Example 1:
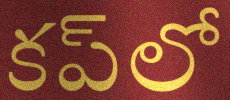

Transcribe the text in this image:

కప్‌లో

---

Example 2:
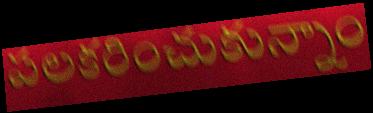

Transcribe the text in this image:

పలకరించుకున్నాం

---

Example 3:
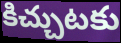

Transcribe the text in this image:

కిచ్చుటకు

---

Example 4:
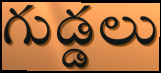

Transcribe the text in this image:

గుడ్డలు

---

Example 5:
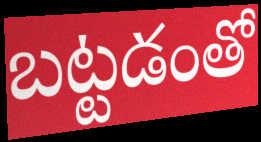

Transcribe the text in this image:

బట్టడంతో